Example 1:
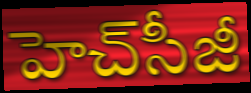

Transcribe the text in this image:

హెచ్‌సీజీ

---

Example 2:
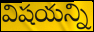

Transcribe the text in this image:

విషయన్ని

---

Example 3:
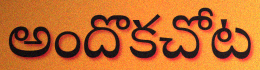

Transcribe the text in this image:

అందొకచోట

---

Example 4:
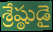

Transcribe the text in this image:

శ్రేష్ఠుడై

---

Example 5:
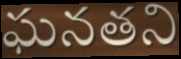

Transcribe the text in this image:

ఘనతని